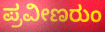
ಪ್ರವೀಣರುಂ